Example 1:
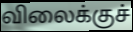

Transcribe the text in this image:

விலைக்குச்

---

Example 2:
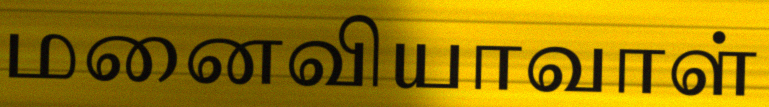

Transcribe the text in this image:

மனைவியாவாள்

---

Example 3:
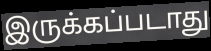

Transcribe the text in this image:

இருக்கப்படாது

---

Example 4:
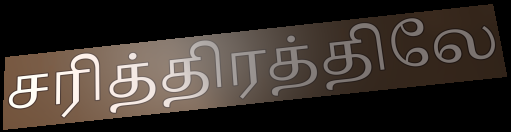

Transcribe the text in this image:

சரித்திரத்திலே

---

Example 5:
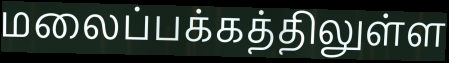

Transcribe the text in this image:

மலைப்பக்கத்திலுள்ள